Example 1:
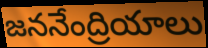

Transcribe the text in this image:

జననేంద్రియాలు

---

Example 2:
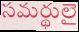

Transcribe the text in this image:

సమర్థులై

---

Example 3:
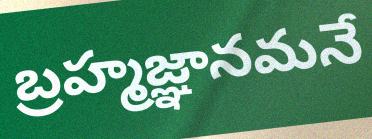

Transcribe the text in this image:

బ్రహ్మజ్ఞానమనే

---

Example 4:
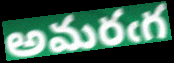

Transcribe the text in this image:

అమరఁగ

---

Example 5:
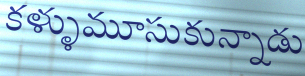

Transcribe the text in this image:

కళ్ళుమూసుకున్నాడు